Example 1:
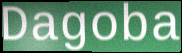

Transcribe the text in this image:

Dagoba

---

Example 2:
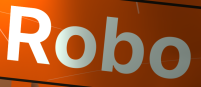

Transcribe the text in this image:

Robo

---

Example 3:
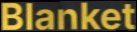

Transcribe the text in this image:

Blanket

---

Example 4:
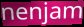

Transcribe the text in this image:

nenjam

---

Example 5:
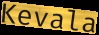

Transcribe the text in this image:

Kevala